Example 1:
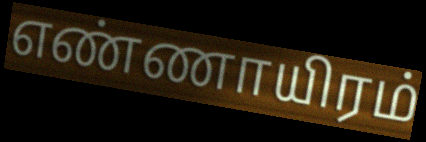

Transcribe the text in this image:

எண்ணாயிரம்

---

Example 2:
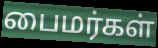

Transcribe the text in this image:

பைமர்கள்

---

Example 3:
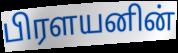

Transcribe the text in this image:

பிரளயனின்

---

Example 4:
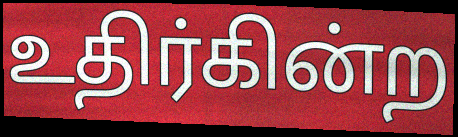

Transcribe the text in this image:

உதிர்கின்ற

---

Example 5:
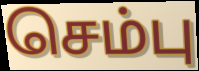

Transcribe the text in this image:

செம்பு